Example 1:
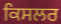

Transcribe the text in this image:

ਕਿਸਲਰ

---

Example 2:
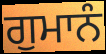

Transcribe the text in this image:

ਗੁਮਾਨੰ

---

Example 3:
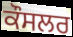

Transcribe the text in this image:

ਕੌਸਲਰ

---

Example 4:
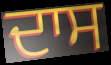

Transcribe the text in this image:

ਦਾਸ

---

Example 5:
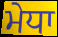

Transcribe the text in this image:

ਮੇਧਾ